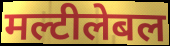
मल्टीलेबल